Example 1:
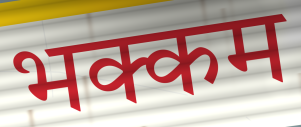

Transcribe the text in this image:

भक्कम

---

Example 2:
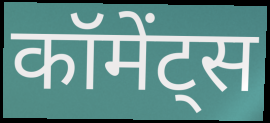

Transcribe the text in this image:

कॉमेंट्स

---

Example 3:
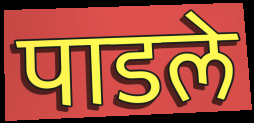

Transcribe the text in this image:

पाडले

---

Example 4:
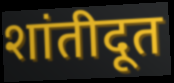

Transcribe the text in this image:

शांतीदूत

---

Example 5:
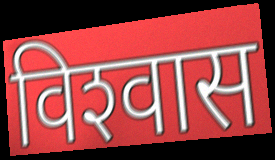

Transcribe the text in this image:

विश्‍वास